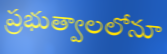
ప్రభుత్వాలలోనూ